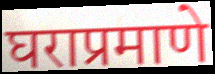
घराप्रमाणे